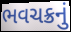
ભવચક્રનું